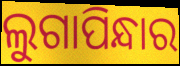
ଲୁଗାପିନ୍ଧାର